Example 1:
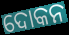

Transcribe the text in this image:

ଦୋକନ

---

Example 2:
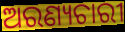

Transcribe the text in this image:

ଅରଣ୍ୟଚାରୀ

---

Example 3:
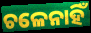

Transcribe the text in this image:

ଚଳେନାହିଁ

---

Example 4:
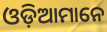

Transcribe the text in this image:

ଓଡ଼ିଆମାନେ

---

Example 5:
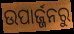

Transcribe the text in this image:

ଉପାର୍ଜ୍ଜନରୁ